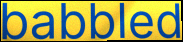
babbled